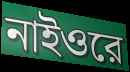
নাইওরে